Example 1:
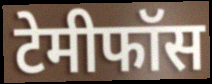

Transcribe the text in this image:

टेमीफॉस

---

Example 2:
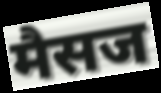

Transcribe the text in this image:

मैसज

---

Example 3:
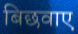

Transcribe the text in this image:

बिछवाए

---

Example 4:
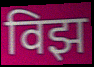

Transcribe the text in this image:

विझ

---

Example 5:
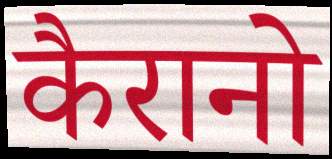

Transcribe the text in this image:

कैरानो